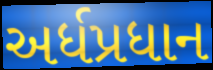
અર્ધપ્રધાન